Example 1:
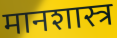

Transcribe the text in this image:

मानशास्त्र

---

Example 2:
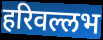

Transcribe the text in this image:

हरिवल्लभ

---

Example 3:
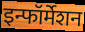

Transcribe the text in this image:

इन्फॉर्मेशन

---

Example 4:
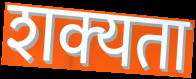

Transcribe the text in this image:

शक्‍यता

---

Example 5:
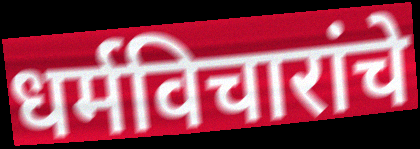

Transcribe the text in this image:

धर्मविचारांचे